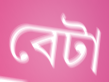
বেটা